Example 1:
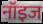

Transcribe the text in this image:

नॉइज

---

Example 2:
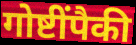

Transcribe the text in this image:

गोष्टींपैकी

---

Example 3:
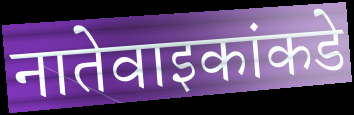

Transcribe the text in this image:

नातेवाइकांकडे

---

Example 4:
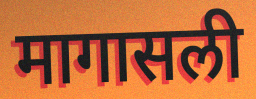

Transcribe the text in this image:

मागासली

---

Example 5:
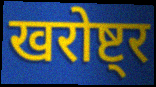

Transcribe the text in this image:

खरोष्ट्र